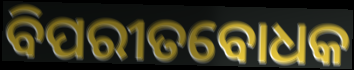
ବିପରୀତବୋଧକ